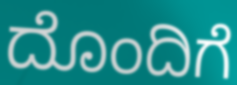
ದೊಂದಿಗೆ